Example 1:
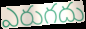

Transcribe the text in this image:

ఎరుగదు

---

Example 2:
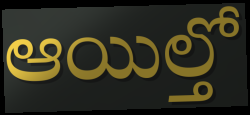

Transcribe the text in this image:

ఆయిల్తో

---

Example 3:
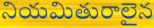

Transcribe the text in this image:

నియమితురాలైన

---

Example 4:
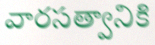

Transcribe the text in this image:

వారసత్వానికి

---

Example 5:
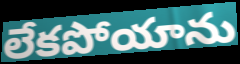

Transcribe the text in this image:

లేకపోయాను